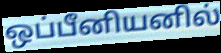
ஒப்பீனியனில்